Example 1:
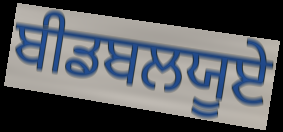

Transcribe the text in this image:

ਬੀਡਬਲਯੂਏ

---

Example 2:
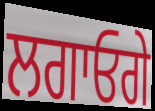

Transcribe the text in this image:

ਲਗਾਓਗੇ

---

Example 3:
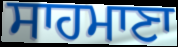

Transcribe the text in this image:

ਸਾਹਮਾਣਾ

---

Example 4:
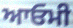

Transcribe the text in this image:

ਆਓਮੀ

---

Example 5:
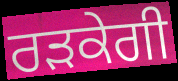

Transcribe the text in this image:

ਰੜਕੇਗੀ